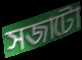
সজাটো